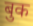
बुक